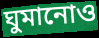
ঘুমানোও